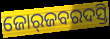
ଜୋର୍‍ଜବରଦସ୍ତି